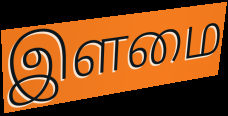
இளமை